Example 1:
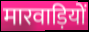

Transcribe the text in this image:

मारवाड़ियों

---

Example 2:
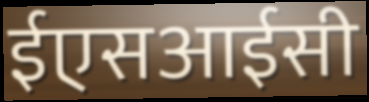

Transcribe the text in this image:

ईएसआईसी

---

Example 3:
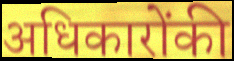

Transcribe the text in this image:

अधिकारोंकी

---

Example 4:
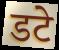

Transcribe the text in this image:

डटे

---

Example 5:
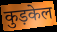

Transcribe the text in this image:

कुड़केल